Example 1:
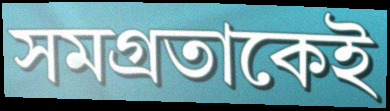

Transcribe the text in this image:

সমগ্রতাকেই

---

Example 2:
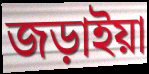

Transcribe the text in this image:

জড়াইয়া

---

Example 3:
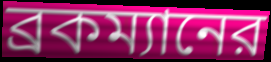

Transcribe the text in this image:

ব্রকম্যানের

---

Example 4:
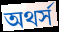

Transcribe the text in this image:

অথর্স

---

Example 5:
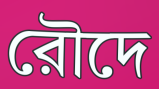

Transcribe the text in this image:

রৌদে